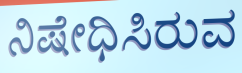
ನಿಷೇಧಿಸಿರುವ